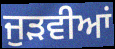
ਜੁੜਵੀਆਂ